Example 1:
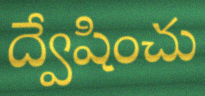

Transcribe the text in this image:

ద్వేషించు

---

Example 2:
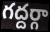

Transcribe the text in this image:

గద్దర్గా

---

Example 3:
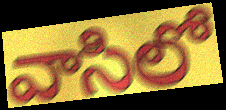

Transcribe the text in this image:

వాసిలో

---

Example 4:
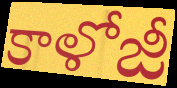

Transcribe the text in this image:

కాళోజీ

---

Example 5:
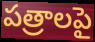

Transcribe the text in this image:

పత్రాలపై